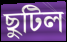
ছুটিল